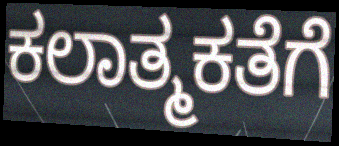
ಕಲಾತ್ಮಕತೆಗೆ